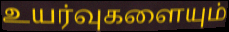
உயர்வுகளையும்